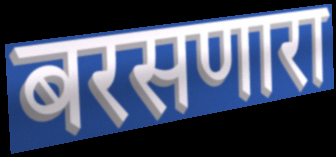
बरसणारा